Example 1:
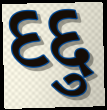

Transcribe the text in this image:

દદ્દુ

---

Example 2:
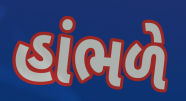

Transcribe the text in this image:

હાંભળે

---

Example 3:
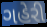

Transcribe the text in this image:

ગહેરી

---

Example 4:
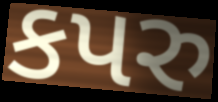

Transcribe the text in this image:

કપરુ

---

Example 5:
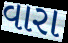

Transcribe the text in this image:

વારા